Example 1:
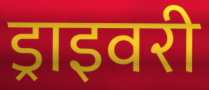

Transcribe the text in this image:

ड्राइवरी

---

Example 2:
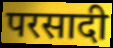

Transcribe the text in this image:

परसादी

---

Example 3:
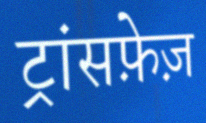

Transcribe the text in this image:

ट्रांसफ़ेज़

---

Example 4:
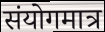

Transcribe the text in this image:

संयोगमात्र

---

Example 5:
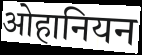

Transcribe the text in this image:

ओहानियन